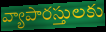
వ్యాపారస్తులకు